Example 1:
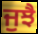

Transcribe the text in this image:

ਜੁਝੈ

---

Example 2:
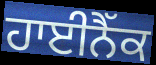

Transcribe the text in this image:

ਹਾਈਨੈੱਕ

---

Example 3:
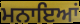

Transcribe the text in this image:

ਮਨਾਇਆਂ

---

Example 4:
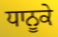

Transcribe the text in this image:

ਧਾਨੂਕੇ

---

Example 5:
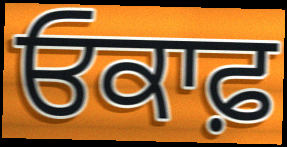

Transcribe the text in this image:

ਓਕਾਫ਼